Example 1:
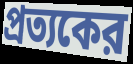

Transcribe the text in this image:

প্রত্যকের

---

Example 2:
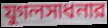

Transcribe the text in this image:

যুগলসাধনার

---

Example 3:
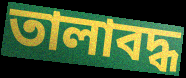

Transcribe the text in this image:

তালাবদ্ধ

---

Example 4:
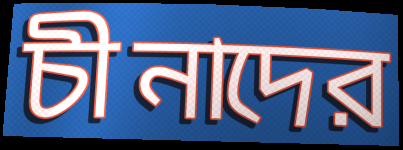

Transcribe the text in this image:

চীনাদের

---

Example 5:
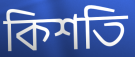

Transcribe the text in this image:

কিশতি